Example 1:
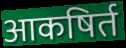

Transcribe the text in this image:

आकषिर्त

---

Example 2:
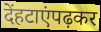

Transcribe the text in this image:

देंहटाएंपढ़कर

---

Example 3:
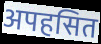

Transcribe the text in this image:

अपहसित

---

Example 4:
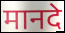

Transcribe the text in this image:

मानदे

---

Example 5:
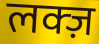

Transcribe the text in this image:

लक्ज़